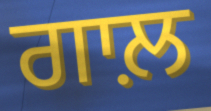
ਗਾਲ਼